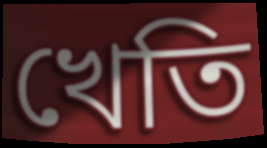
খেতি